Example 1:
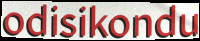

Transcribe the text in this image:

odisikondu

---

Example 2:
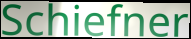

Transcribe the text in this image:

Schiefner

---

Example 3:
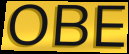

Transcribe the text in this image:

OBE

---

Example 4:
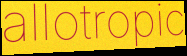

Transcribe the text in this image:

allotropic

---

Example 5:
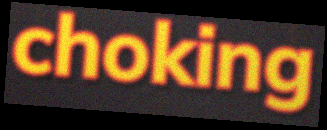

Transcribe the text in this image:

choking